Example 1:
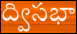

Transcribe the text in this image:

ద్విసభా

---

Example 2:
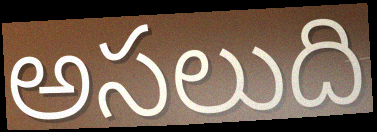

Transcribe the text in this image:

అసలుది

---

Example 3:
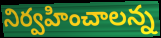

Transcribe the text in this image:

నిర్వహించాలన్న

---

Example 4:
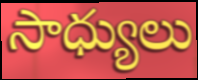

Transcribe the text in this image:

సాధ్యులు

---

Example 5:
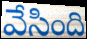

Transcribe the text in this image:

వేసింది